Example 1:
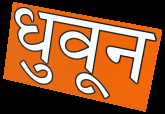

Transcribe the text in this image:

धुवून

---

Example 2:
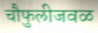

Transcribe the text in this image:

चौफुलीजवळ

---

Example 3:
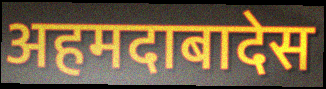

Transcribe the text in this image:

अहमदाबादेस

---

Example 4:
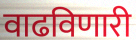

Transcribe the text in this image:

वाढविणारी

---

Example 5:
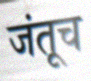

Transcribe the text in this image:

जंतूच